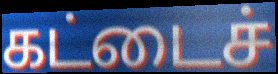
கட்டைச்